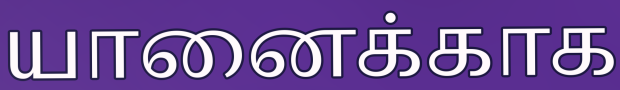
யானைக்காக